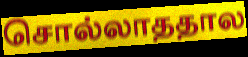
சொல்லாததால